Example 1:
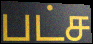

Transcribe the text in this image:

பட்ச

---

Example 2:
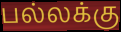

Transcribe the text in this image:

பல்லக்கு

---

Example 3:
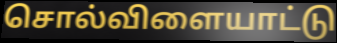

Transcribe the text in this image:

சொல்விளையாட்டு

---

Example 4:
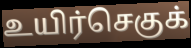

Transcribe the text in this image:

உயிர்செகுக்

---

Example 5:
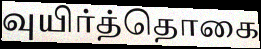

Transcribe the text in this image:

வுயிர்த்தொகை